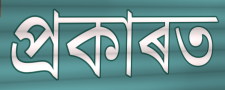
প্ৰকাৰত